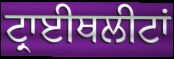
ਟ੍ਰਾਈਥਲੀਟਾਂ